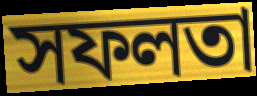
সফলতা